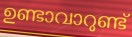
ഉണ്ടാവാറുണ്ട്